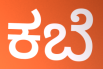
ಕಬೆ